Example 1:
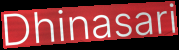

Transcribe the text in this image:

Dhinasari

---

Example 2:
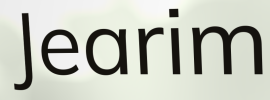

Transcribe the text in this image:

Jearim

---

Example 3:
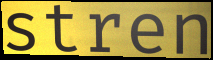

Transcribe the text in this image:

stren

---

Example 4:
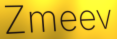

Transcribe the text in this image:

Zmeev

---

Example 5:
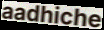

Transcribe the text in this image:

aadhiche